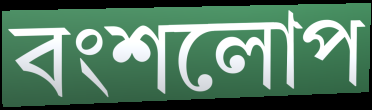
বংশলোপ